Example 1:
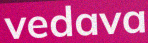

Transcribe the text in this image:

vedava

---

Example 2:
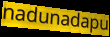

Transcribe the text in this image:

nadunadapu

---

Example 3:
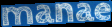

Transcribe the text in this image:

manae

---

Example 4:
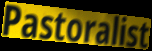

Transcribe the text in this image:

Pastoralist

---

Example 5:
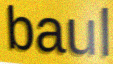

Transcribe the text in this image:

baul